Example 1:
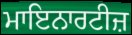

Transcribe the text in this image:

ਮਾਇਨਾਰਟੀਜ਼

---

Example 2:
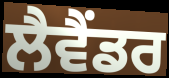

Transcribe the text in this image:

ਲੈਵੈਂਡਰ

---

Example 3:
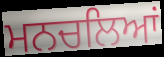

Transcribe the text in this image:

ਮਨਚਲਿਆਂ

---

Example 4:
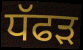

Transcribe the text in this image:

ਧੱਫੜ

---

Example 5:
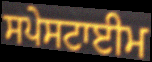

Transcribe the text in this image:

ਸਪੇਸਟਾਈਮ